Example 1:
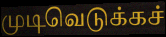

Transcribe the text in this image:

முடிவெடுக்கச்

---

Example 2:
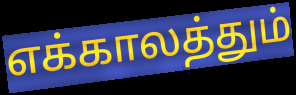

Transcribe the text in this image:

எக்காலத்தும்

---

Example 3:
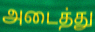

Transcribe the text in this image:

அடைத்து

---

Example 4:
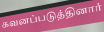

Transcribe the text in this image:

கவனப்படுத்தினார்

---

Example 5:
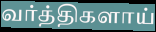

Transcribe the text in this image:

வர்த்திகளாய்